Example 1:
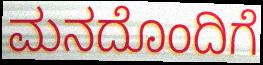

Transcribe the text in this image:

ಮನದೊಂದಿಗೆ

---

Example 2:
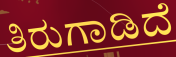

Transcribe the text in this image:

ತಿರುಗಾಡಿದೆ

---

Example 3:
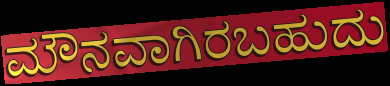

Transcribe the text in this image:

ಮೌನವಾಗಿರಬಹುದು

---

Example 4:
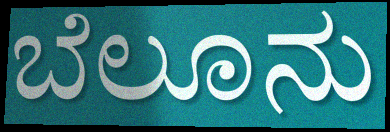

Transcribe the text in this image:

ಬೆಲೂನು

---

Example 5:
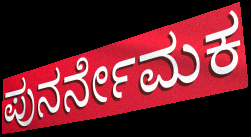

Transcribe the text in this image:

ಪುನರ್ನೇಮಕ